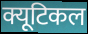
क्यूटिकल